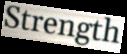
Strength